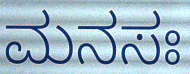
ಮನಸಃ